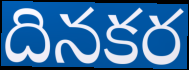
దినకర